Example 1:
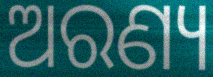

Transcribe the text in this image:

ଅରଣ୍ୟ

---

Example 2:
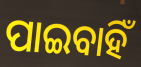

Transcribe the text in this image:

ପାଇବାହିଁ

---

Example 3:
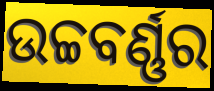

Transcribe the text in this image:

ଉଚ୍ଚବର୍ଣ୍ଣର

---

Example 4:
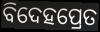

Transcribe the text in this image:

ବିଦେହପ୍ରେତ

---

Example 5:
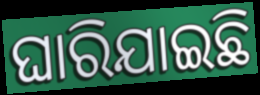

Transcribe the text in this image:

ଘାରିଯାଇଛି